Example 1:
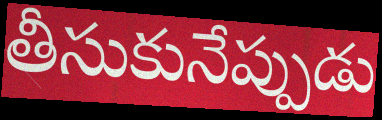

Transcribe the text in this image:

తీసుకునేప్పుడు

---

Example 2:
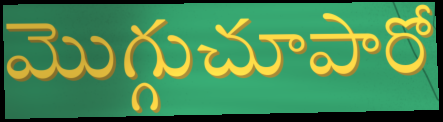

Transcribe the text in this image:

మొగ్గుచూపారో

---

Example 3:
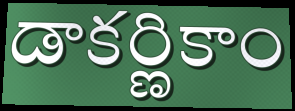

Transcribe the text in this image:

డాకర్ణికాం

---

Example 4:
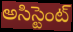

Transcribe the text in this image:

అసిస్టెంట్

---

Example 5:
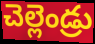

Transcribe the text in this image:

చెల్లెండ్రు